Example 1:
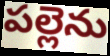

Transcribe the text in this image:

పల్లెను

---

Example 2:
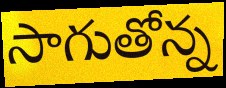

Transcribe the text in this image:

సాగుతోన్న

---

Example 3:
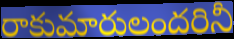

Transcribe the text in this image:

రాకుమారులందరినీ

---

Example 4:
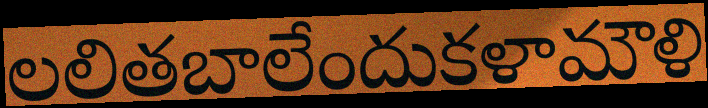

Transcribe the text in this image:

లలితబాలేందుకళామౌళి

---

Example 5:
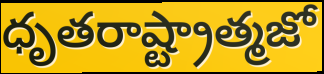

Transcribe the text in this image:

ధృతరాష్ట్రాత్మజో